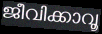
ജീവിക്കാവൂ